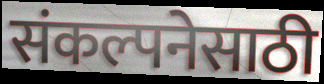
संकल्पनेसाठी